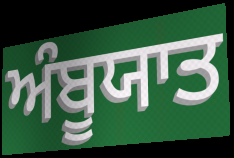
ਅੰਬੂਯਾਤ